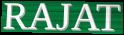
RAJAT